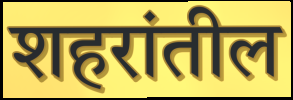
शहरांतील